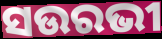
ସଉରଭୀ